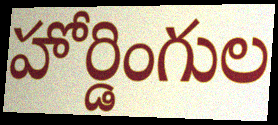
హోర్డింగుల